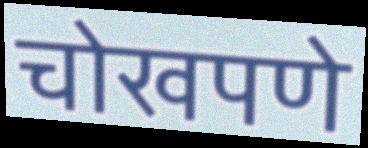
चोखपणे